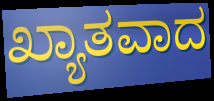
ಖ್ಯಾತವಾದ